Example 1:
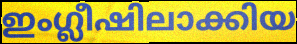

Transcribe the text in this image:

ഇംഗ്ലീഷിലാക്കിയ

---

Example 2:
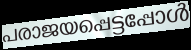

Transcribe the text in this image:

പരാജയപ്പെട്ടപ്പോൾ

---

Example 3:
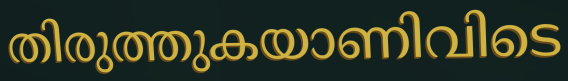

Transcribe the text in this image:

തിരുത്തുകയാണിവിടെ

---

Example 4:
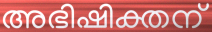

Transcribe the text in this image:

അഭിഷിക്തന്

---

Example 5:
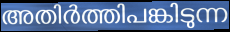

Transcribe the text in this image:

അതിർത്തിപങ്കിടുന്ന